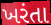
ખરંતા